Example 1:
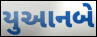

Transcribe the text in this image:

યુઆનબે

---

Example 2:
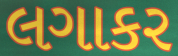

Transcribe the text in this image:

લગાકર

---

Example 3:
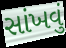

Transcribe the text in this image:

સાંખવું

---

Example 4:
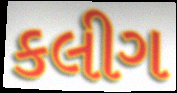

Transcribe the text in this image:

કલીગ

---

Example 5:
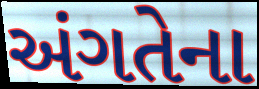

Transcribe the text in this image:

અંગતેના